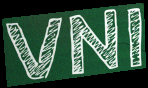
VNI